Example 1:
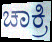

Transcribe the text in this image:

ಚಾಕ್ರಿ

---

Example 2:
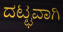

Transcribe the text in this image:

ದಟ್ಟವಾಗಿ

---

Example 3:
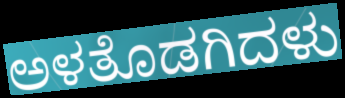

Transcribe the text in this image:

ಅಳತೊಡಗಿದಳು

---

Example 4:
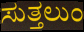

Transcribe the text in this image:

ಸುತ್ತಲುಂ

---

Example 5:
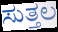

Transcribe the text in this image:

ಸುತ್ತಲ